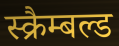
स्क्रैम्बल्ड